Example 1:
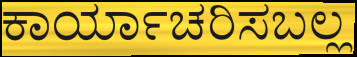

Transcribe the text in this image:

ಕಾರ್ಯಾಚರಿಸಬಲ್ಲ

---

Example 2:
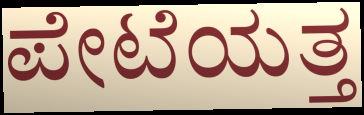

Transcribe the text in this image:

ಪೇಟೆಯತ್ತ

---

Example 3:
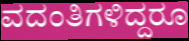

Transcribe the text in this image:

ವದಂತಿಗಳಿದ್ದರೂ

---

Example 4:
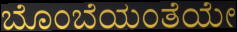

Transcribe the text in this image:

ಬೊಂಬೆಯಂತೆಯೇ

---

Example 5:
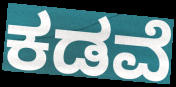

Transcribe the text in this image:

ಕಡವೆ